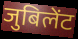
जुबिलेंट